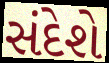
સંદેશે